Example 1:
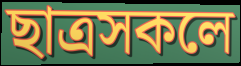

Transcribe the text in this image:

ছাত্ৰসকলে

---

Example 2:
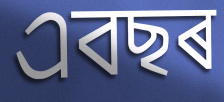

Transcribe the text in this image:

এবছৰ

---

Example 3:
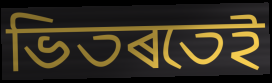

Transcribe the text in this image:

ভিতৰতেই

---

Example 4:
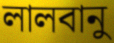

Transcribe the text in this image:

লালবানু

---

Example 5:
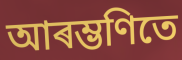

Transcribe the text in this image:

আৰম্ভণিতে